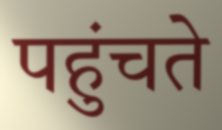
पहुंचते